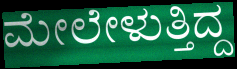
ಮೇಲೇಳುತ್ತಿದ್ದ